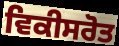
ਵਿਕੀਸਰੋਤ